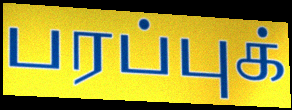
பரப்புக்